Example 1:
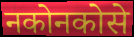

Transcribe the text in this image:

नकोनकोसे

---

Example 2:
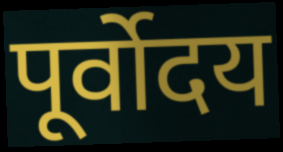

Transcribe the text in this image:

पूर्वोदय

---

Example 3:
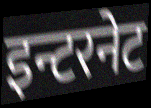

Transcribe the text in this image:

इन्टरनेट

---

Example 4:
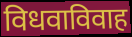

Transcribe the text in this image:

विधवाविवाह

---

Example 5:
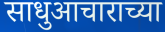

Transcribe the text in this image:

साधुआचाराच्या